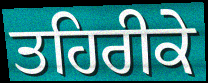
ਤਹਿਰੀਕੇ